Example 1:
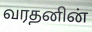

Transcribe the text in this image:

வரதனின்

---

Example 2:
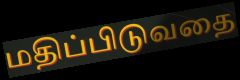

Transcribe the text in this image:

மதிப்பிடுவதை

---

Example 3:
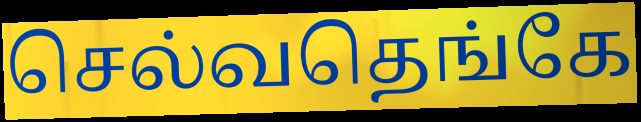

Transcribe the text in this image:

செல்வதெங்கே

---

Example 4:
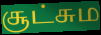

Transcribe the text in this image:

சூட்சும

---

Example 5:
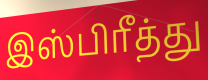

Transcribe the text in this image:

இஸ்பிரீத்து